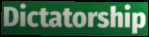
Dictatorship